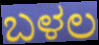
ಬಳಲ